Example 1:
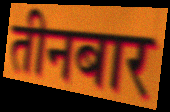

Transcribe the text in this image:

तीनबार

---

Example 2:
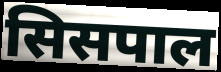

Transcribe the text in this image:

सिसपाल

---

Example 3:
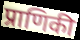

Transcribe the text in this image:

प्राणिकी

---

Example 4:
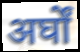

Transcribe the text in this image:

अर्घों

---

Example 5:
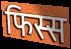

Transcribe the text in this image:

फिस्स